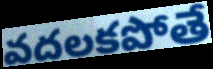
వదలకపోతే